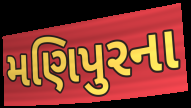
મણિપુરના